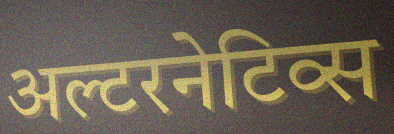
अल्टरनेटिव्स